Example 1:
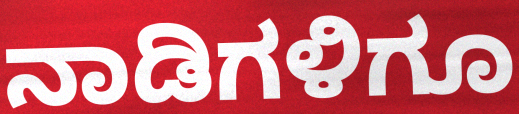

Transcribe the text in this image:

ನಾಡಿಗಳಿಗೂ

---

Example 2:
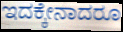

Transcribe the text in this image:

ಇದಕ್ಕೇನಾದರೂ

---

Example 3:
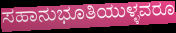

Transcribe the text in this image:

ಸಹಾನುಭೂತಿಯುಳ್ಳವರೂ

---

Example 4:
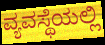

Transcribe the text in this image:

ವ್ಯವಸ್ಥೆಯಲ್ಲಿ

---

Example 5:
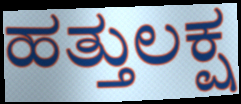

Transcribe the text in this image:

ಹತ್ತುಲಕ್ಷ